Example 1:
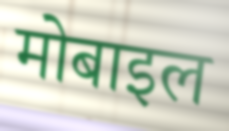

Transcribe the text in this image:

मोबाइल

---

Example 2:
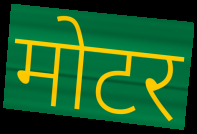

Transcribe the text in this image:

मोटर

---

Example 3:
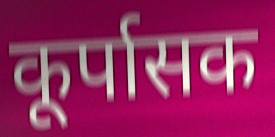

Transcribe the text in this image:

कूर्पासक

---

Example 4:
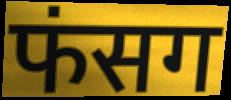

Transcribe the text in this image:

फंसग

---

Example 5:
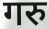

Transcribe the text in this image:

गरु